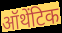
ऑथेंटिक